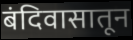
बंदिवासातून